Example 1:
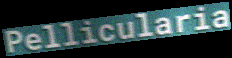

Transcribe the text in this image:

Pellicularia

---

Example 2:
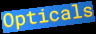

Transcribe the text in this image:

Opticals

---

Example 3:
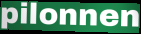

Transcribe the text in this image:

pilonnen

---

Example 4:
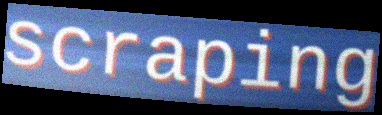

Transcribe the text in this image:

scraping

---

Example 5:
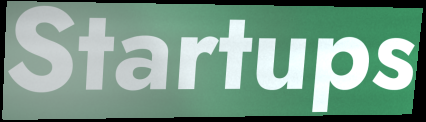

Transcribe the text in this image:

Startups